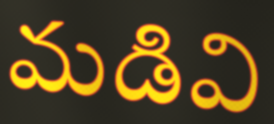
మడివి